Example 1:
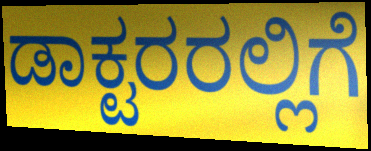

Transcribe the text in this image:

ಡಾಕ್ಟರರಲ್ಲಿಗೆ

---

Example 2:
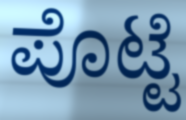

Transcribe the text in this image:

ಪೊಟ್ಟೆ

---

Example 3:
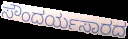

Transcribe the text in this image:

ಸೌಂದರ್ಯಸಾರದ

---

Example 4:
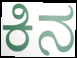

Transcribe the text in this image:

ಕಿನ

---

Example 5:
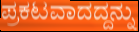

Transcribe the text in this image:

ಪ್ರಕಟವಾದದ್ದನ್ನು